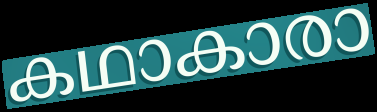
കഥാകാരാ